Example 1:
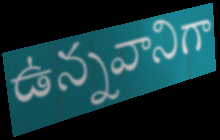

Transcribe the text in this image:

ఉన్నవానిగా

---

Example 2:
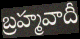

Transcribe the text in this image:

బ్రహ్మవాదీ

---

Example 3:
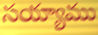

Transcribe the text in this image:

సయ్యాము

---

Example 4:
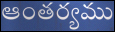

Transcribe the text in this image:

ఆంతర్యము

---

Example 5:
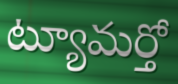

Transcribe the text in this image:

ట్యూమర్తో